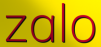
zalo